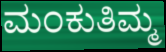
ಮಂಕುತಿಮ್ಮ